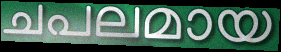
ചപലമായ